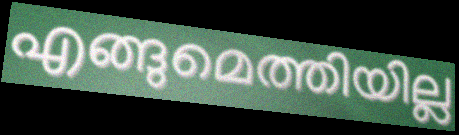
എങ്ങുമെത്തിയില്ല